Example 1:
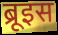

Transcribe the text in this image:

ब्रूइस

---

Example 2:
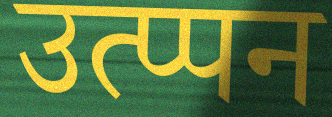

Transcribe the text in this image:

उत्प्पन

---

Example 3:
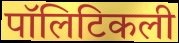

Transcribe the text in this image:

पॉलिटिकली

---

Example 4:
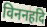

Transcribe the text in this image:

विननहदि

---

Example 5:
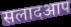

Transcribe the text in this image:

सलादआप